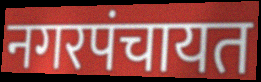
नगरपंचायत